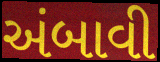
અંબાવી